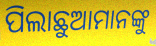
ପିଲାଛୁଆମାନଙ୍କୁ